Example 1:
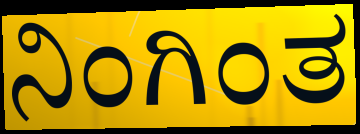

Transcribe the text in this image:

ನಿಂಗಿಂತ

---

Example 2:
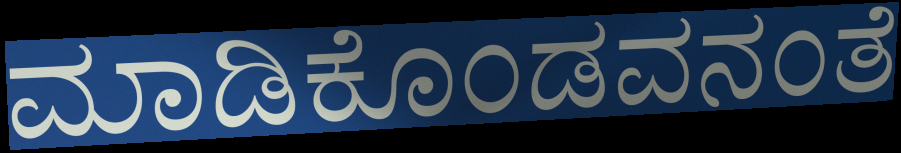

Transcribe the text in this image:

ಮಾಡಿಕೊಂಡವನಂತೆ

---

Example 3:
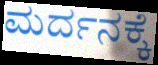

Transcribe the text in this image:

ಮರ್ದನಕ್ಕೆ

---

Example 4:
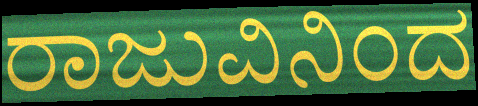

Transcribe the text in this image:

ರಾಜುವಿನಿಂದ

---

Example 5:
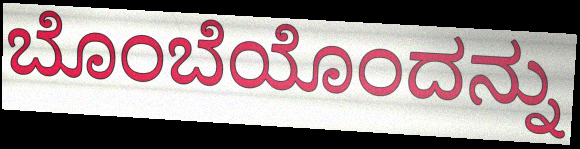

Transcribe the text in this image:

ಬೊಂಬೆಯೊಂದನ್ನು